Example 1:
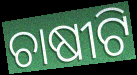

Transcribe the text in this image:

ଚାଷୀଟି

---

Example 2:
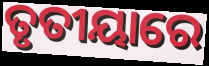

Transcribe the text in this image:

ତୃତୀୟାରେ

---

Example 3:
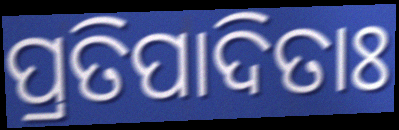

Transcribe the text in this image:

ପ୍ରତିପାଦିତାଃ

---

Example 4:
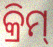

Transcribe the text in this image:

କ୍ରିମ୍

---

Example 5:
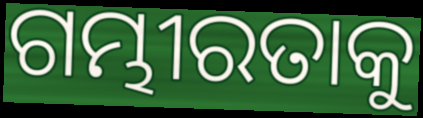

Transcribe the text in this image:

ଗମ୍ଭୀରତାକୁ